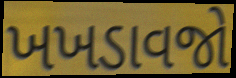
ખખડાવજો